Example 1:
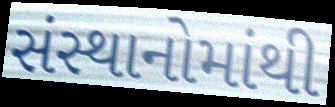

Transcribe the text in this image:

સંસ્થાનોમાંથી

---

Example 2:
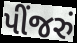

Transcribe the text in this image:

પીંજરું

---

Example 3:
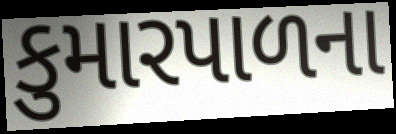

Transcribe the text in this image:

કુમારપાળના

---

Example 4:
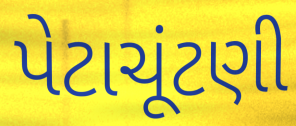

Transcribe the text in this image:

પેટાચૂંટણી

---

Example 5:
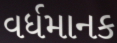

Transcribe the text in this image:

વર્ધમાનક